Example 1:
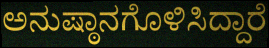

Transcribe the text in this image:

ಅನುಷ್ಠಾನಗೊಳಿಸಿದ್ದಾರೆ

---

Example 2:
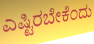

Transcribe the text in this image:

ಎಷ್ಟಿರಬೇಕೆಂದು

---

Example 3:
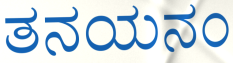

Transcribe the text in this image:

ತನಯನಂ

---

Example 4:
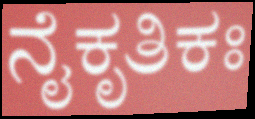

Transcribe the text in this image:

ನೈಕೃತಿಕಃ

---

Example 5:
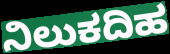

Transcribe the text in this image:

ನಿಲುಕದಿಹ